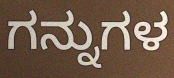
ಗನ್ನುಗಳ